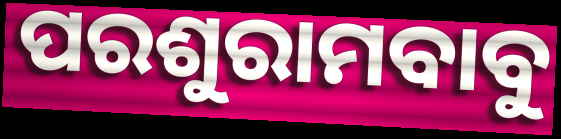
ପରଶୁରାମବାବୁ